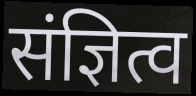
संज्ञित्व